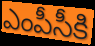
ఎంపీసీకి